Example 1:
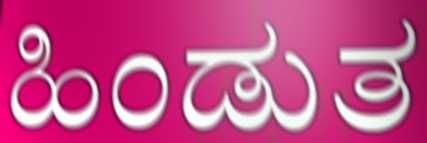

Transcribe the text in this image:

ಹಿಂಡುತ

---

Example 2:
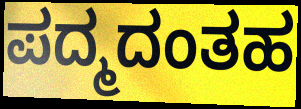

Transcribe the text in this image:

ಪದ್ಮದಂತಹ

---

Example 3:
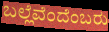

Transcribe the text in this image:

ಬಲ್ಲೆವೆಂದೆಂಬರು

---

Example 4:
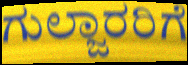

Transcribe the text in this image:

ಗುಲ್ಜಾರರಿಗೆ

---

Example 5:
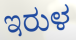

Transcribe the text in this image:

ಇರುಳ